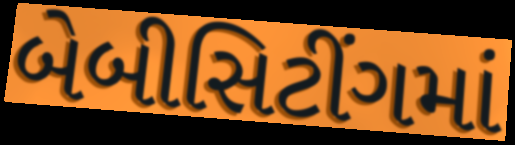
બેબીસિટીંગમાં